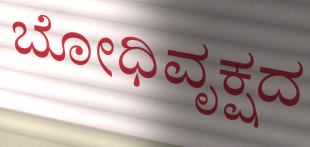
ಬೋಧಿವೃಕ್ಷದ